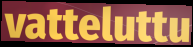
vatteluttu